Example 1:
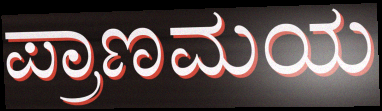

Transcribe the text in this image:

ಪ್ರಾಣಮಯ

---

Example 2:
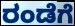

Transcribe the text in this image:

ರಂಡೆಗೆ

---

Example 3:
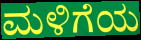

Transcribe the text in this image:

ಮಳಿಗೆಯ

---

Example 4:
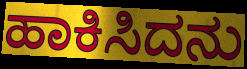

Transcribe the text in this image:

ಹಾಕಿಸಿದನು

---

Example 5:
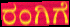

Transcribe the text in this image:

ರಂಗಿಗೆ